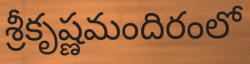
శ్రీకృష్ణమందిరంలో